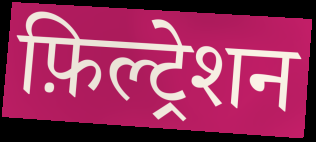
फ़िल्ट्रेशन